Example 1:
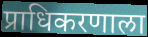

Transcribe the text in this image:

प्राधिकरणाला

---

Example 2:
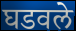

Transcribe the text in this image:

घडवले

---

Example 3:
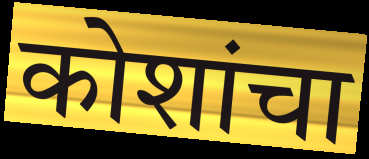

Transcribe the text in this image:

कोशांचा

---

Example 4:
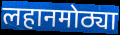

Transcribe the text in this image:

लहानमोठ्या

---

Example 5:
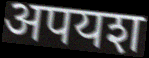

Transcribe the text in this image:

अपयश